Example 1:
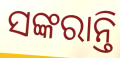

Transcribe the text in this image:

ସଙ୍କରାନ୍ତି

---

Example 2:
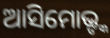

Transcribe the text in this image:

ଆସିମୋଭ୍ଙ୍କ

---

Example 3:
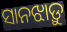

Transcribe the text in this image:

ସାନଝାଡ଼ୁ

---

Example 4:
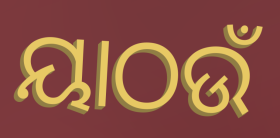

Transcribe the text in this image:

ୟାଠଉଁ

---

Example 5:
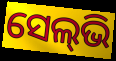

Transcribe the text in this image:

ସେଲ୍‌ଭି